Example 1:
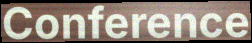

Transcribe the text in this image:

Conference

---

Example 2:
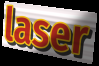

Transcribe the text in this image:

laser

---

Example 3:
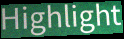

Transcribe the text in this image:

Highlight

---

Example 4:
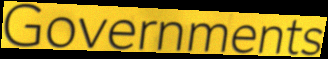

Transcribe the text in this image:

Governments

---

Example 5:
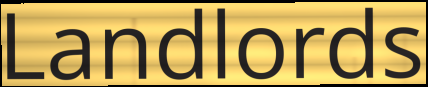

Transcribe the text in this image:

Landlords